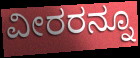
ವೀರರನ್ನೂ